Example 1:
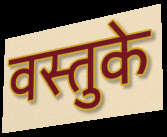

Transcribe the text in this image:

वस्तुके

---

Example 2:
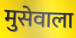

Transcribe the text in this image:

मुसेवाला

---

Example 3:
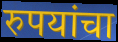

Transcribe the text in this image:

रुपयांचा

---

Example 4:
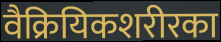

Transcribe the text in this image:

वैक्रियिकशरीरका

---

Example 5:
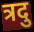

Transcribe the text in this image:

त्रदु